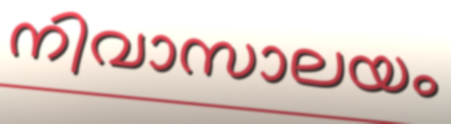
നിവാസാലയം